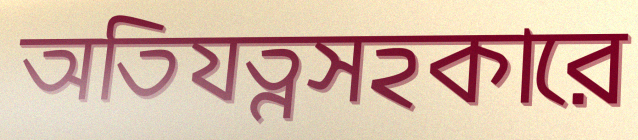
অতিযত্নসহকারে